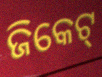
ଜିକେଟ୍